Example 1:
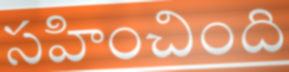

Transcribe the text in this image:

సహించింది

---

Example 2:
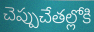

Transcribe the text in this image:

చెప్పుచేతల్లోకి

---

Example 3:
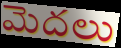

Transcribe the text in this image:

మెదలు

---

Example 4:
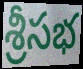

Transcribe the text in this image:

శ్రీసభ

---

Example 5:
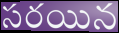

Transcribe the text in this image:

సరయిన